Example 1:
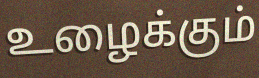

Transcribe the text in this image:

உழைக்கும்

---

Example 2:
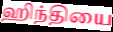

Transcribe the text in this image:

ஹிந்தியை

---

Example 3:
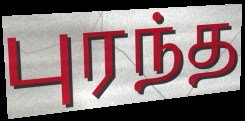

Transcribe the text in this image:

புரந்த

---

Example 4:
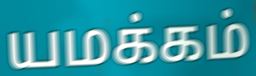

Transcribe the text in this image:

யமக்கம்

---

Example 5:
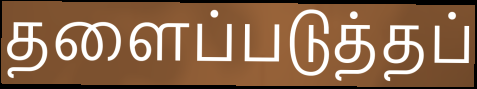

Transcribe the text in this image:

தளைப்படுத்தப்